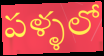
పళ్ళలో